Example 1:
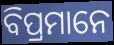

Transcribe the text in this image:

ବିପ୍ରମାନେ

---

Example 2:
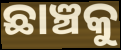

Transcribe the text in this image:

ଛାଞ୍ଚକୁ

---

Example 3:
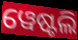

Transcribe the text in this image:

ୱେଷ୍ଟଲି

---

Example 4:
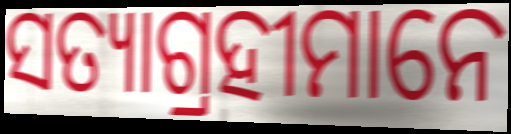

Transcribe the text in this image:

ସତ୍ୟାଗ୍ରହୀମାନେ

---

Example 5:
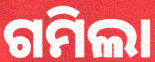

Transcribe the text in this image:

ଗମିଲା